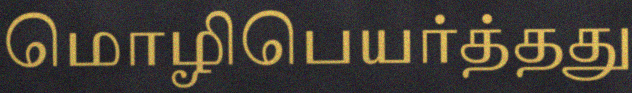
மொழிபெயர்த்தது